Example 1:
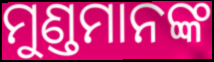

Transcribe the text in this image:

ମୁଣ୍ଡମାନଙ୍କ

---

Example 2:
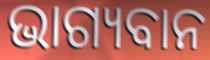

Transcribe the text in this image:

ଭାଗ୍ୟବାନ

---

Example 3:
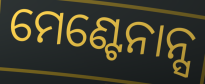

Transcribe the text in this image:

ମେଣ୍ଟେନାନ୍ସ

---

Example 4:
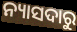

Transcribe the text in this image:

ନ୍ୟାସଦାରୁ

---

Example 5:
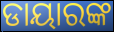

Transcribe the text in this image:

ଡାୟାରଙ୍କ